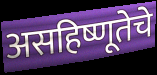
असहिष्णूतेचे